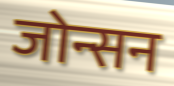
जोन्सन